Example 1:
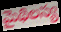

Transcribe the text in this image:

మైథిలస్య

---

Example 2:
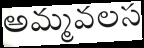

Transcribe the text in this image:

అమ్మవలస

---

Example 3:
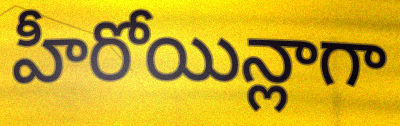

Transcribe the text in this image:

హీరోయిన్లాగా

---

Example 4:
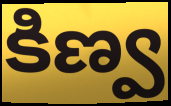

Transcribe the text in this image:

కిణ్వ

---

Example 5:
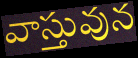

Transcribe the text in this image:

వాస్తువున